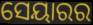
ସେୟାରର